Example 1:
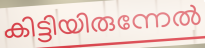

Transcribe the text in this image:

കിട്ടിയിരുന്നേൽ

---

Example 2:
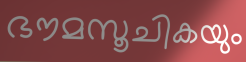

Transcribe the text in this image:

ഭൗമസൂചികയും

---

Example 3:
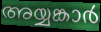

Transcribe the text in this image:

അയ്യങ്കാർ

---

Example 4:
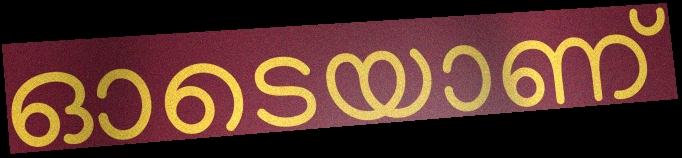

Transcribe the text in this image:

ഓടെയാണ്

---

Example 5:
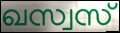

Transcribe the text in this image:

ഖസ്വസ്